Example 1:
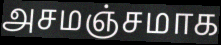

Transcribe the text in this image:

அசமஞ்சமாக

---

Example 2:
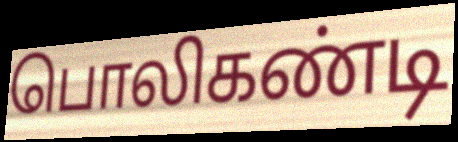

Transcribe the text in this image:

பொலிகண்டி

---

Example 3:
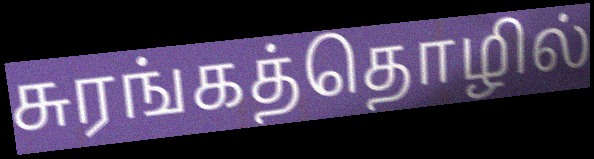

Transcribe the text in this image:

சுரங்கத்தொழில்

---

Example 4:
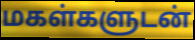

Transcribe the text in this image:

மகள்களுடன்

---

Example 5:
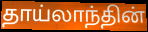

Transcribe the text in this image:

தாய்லாந்தின்